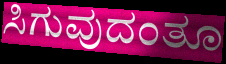
ಸಿಗುವುದಂತೂ